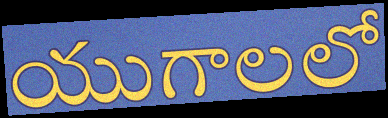
యుగాలలో